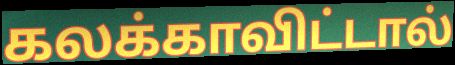
கலக்காவிட்டால்